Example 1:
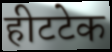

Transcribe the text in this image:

हीटटेक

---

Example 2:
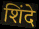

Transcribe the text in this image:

शिंदे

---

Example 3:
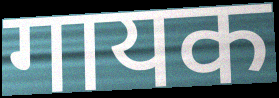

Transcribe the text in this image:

गायक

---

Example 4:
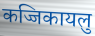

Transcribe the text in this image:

कज्जिकायलु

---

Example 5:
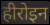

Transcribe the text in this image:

हीरोइन